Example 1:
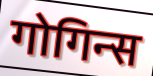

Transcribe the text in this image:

गोगिन्स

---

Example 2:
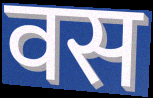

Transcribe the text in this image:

वस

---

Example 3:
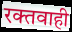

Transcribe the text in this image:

रक्तवाही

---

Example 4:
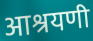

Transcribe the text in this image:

आश्रयणी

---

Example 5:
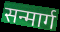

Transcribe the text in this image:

सन्‍मार्ग